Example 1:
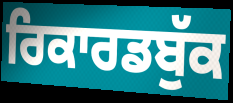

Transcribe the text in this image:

ਰਿਕਾਰਡਬੁੱਕ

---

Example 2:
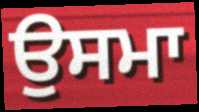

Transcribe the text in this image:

ਉਸਮਾ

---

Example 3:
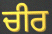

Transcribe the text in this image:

ਚੀਰ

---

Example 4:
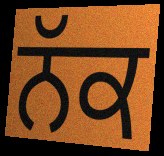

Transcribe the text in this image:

ਨੱਕ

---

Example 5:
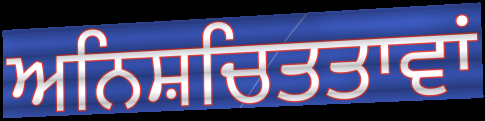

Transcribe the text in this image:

ਅਨਿਸ਼ਚਿਤਤਾਵਾਂ